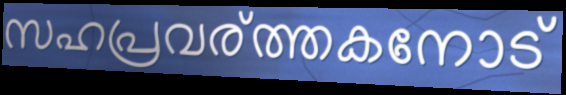
സഹപ്രവര്ത്തകനോട്